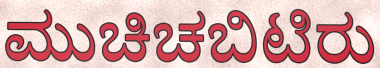
ಮುಚಿಚಬಿಟಿರು